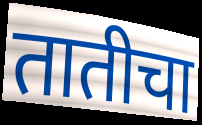
तातीचा